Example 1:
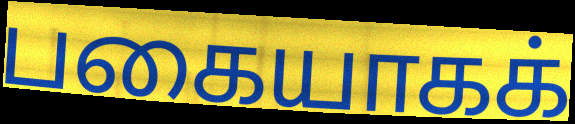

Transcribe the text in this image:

பகையாகக்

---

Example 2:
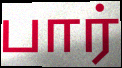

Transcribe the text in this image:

பார்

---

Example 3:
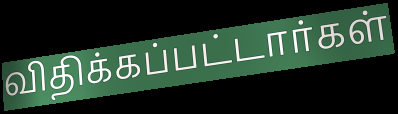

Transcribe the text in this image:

விதிக்கப்பட்டார்கள்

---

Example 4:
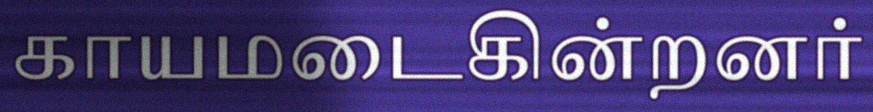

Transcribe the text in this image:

காயமடைகின்றனர்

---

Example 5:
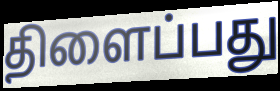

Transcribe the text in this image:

திளைப்பது